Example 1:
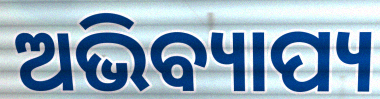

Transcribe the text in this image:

ଅଭିବ୍ୟାପ୍ୟ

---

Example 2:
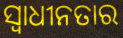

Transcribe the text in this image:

ସ୍ବାଧୀନତାର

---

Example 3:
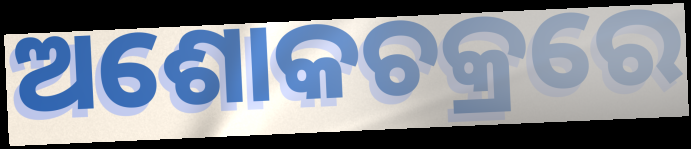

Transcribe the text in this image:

ଅଶୋକଚକ୍ରରେ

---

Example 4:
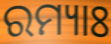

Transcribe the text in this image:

ରମ୍ୟାଃ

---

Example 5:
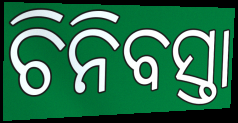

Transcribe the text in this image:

ଚିନିବସ୍ତା